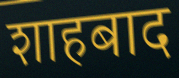
शाहबाद